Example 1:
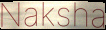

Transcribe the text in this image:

Naksha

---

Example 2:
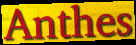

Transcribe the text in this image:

Anthes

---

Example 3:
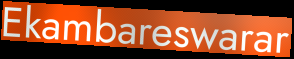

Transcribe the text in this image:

Ekambareswarar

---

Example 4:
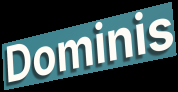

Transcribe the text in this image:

Dominis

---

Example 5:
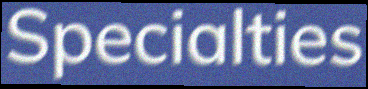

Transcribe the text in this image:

Specialties